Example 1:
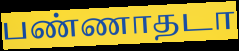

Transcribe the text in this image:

பண்ணாதடா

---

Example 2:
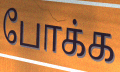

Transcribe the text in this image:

போக்க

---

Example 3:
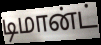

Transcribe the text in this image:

டிமான்ட்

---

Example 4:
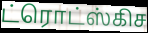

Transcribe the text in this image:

ட்ரொட்ஸ்கிச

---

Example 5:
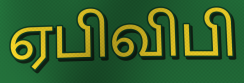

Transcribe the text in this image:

ஏபிவிபி